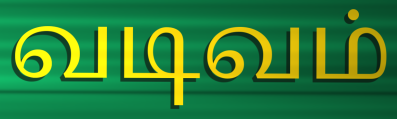
வடிவம்